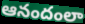
ఆనందంలా